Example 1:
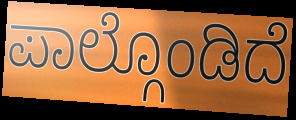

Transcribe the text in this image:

ಪಾಲ್ಗೊಂಡಿದೆ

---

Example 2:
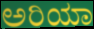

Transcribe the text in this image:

ಅರಿಯಾ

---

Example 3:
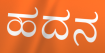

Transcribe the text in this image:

ಹದನ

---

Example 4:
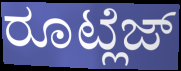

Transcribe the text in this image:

ರೂಟ್ಲೆಜ್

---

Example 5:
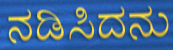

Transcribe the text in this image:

ನಡಿಸಿದನು